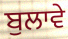
ਬੁਲਾਵੇ